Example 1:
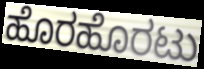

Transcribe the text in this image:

ಹೊರಹೊರಟು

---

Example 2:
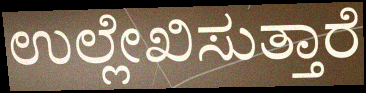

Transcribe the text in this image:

ಉಲ್ಲೇಖಿಸುತ್ತಾರೆ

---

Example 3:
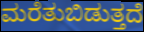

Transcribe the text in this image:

ಮರೆತುಬಿಡುತ್ತದೆ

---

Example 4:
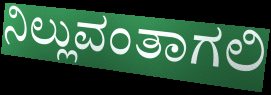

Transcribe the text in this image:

ನಿಲ್ಲುವಂತಾಗಲಿ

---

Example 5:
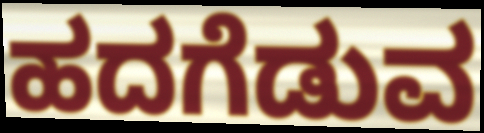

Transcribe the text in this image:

ಹದಗೆಡುವ